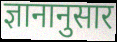
ज्ञानानुसार